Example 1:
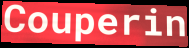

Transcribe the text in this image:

Couperin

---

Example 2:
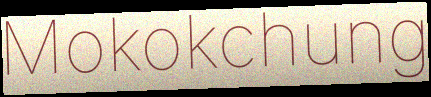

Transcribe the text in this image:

Mokokchung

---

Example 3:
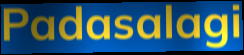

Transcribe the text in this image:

Padasalagi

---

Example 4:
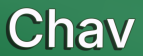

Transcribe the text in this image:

Chav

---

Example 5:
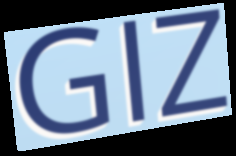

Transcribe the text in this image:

GIZ